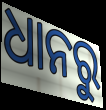
ଧାନରୁ